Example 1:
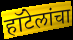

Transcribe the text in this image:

हॉटेलांचा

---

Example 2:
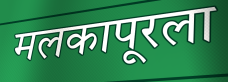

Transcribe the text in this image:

मलकापूरला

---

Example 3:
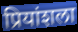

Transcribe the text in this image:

प्रियांशला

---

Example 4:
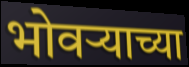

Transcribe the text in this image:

भोवऱ्याच्या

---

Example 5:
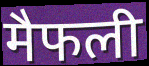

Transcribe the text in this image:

मैफली